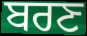
ਬਰਣ